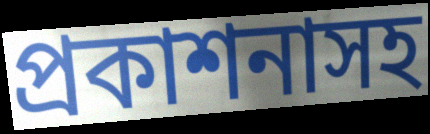
প্রকাশনাসহ